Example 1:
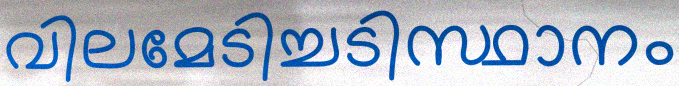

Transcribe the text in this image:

വിലമേടിച്ചടിസ്ഥാനം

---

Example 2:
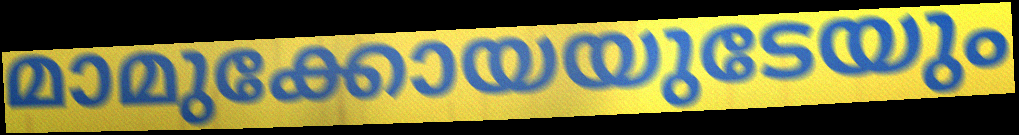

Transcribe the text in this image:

മാമുക്കോയയുടേയും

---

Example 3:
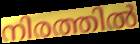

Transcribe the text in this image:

നിരത്തിൽ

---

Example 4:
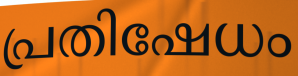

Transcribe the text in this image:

പ്രതിഷേധം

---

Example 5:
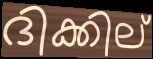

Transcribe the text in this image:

ദിക്കില്